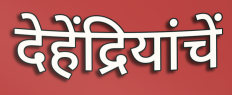
देहेंद्रियांचें